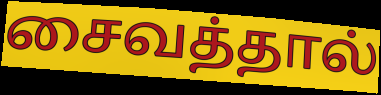
சைவத்தால்